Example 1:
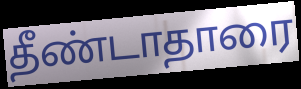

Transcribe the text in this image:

தீண்டாதாரை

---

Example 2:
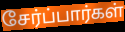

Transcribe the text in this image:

சேர்ப்பார்கள்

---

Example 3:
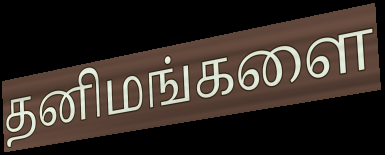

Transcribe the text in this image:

தனிமங்களை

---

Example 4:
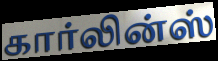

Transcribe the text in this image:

கார்லின்ஸ்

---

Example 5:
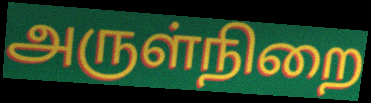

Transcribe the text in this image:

அருள்நிறை